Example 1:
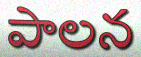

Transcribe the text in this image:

పాలన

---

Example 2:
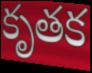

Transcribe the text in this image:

కృతక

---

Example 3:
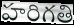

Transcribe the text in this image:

హరిగతి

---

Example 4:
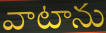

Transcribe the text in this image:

వాటాను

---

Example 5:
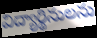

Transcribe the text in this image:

విద్యార్థినులను